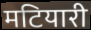
मटियारी